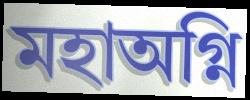
মহাঅগ্নি